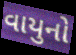
વાયુનો